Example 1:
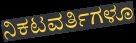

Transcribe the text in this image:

ನಿಕಟವರ್ತಿಗಳೂ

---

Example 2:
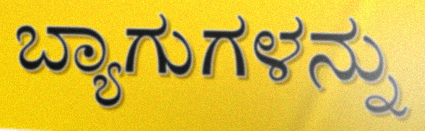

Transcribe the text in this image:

ಬ್ಯಾಗುಗಳನ್ನು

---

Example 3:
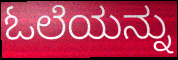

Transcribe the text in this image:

ಓಲೆಯನ್ನು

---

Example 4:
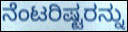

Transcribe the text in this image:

ನೆಂಟರಿಷ್ಟರನ್ನು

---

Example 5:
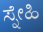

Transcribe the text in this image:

ಸ್ನೇಹಿ